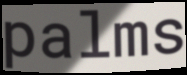
palms